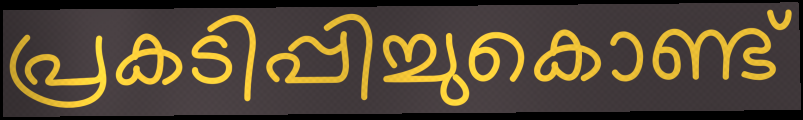
പ്രകടിപ്പിച്ചുകൊണ്ട്